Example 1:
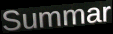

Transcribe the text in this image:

Summar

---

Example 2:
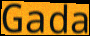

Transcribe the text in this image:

Gada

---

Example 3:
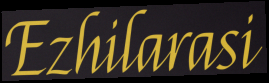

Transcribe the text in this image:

Ezhilarasi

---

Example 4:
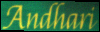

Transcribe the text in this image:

Andhari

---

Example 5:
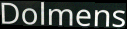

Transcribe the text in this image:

Dolmens